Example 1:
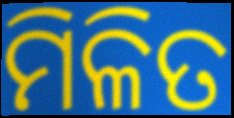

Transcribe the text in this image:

ମିଳିତ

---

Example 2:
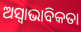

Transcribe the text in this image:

ଅସ୍ୱାଭାବିକତା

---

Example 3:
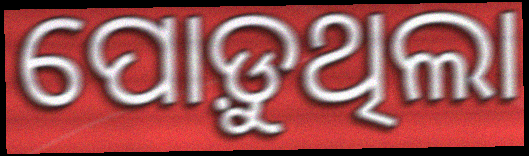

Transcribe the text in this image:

ପୋଡ଼ୁଥିଲା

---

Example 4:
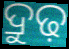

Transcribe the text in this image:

ଦ୍ରୁଢ଼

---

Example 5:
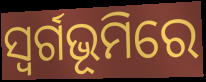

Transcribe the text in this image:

ସ୍ଵର୍ଗଭୂମିରେ